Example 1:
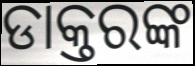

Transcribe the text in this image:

ଡାକ୍ତରଙ୍କ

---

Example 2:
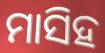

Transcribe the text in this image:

ମାସିହ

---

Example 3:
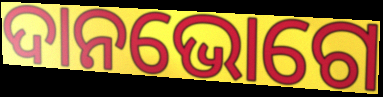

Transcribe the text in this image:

ଦାନଭୋଗେ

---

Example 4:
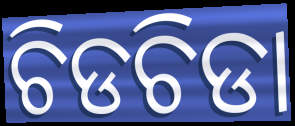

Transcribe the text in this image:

ଚିଡଚିଡା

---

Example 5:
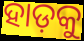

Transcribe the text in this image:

ହାଡ଼କୁ